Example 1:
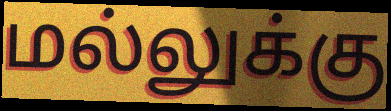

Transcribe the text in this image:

மல்லுக்கு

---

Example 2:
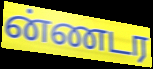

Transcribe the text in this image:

ன்ணடர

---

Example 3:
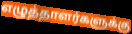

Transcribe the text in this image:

எழுத்தாளர்களுக்கு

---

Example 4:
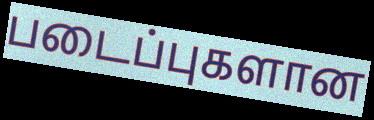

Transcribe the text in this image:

படைப்புகளான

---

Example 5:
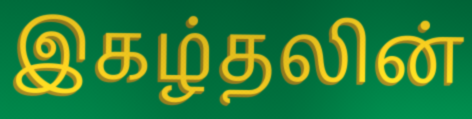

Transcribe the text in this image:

இகழ்தலின்